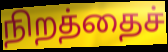
நிறத்தைச்